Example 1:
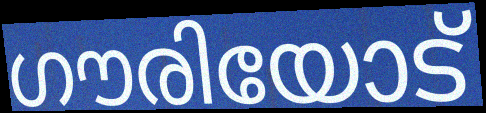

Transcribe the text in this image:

ഗൗരിയോട്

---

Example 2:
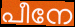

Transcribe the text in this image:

പീനേ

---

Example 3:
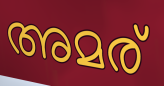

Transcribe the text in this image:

അമര്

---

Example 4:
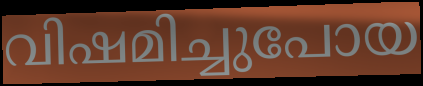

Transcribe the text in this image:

വിഷമിച്ചുപോയ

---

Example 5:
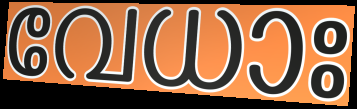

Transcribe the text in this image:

വേധാഃ